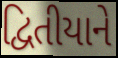
દ્વિતીયાને